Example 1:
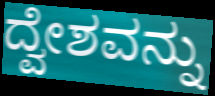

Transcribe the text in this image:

ದ್ವೇಶವನ್ನು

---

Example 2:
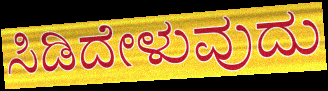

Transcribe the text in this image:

ಸಿಡಿದೇಳುವುದು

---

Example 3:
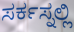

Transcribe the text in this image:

ಸರ್ಕಸ್ನಲ್ಲಿ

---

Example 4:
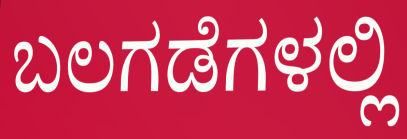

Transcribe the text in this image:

ಬಲಗಡೆಗಳಲ್ಲಿ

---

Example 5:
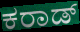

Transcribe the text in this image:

ಕರಾಡ್